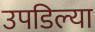
उपडिल्या